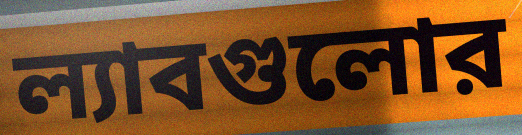
ল্যাবগুলোর